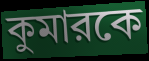
কুমারকে